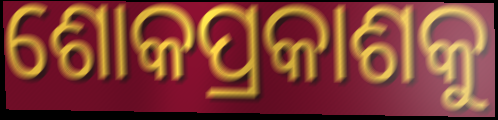
ଶୋକପ୍ରକାଶକୁ